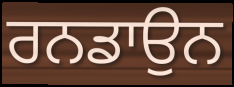
ਰਨਡਾਉਨ